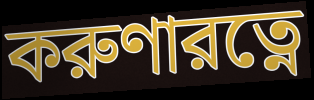
করুণারত্নে